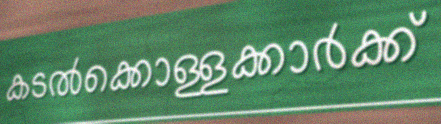
കടൽക്കൊള്ളക്കാർക്ക്